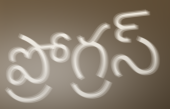
ప్రోగ్రస్